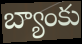
బ్యాంకు